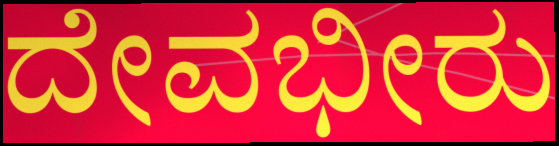
ದೇವಭೀರು